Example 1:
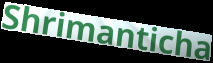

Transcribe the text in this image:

Shrimanticha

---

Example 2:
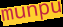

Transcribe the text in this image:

munpu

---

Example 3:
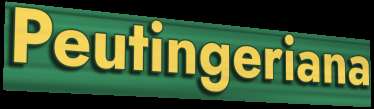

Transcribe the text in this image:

Peutingeriana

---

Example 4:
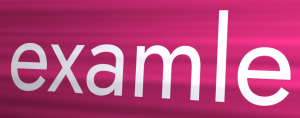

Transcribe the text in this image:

examle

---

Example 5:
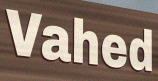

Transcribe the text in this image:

Vahed